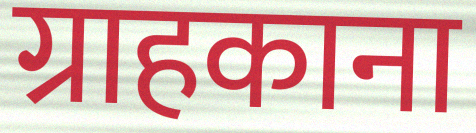
ग्राहकाना